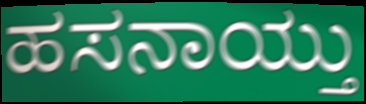
ಹಸನಾಯ್ತು